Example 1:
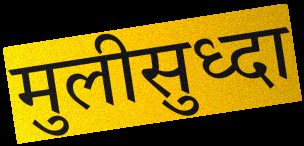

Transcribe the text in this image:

मुलीसुध्दा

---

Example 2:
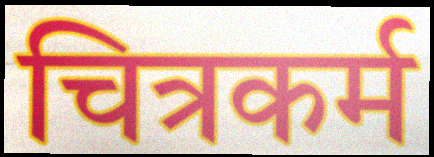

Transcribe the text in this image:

चित्रकर्म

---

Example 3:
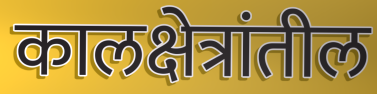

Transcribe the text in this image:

कालक्षेत्रांतील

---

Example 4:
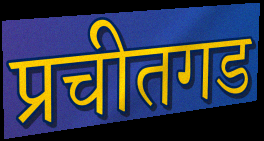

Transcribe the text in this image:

प्रचीतगड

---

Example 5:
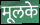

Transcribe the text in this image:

मूलके